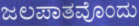
ಜಲಪಾತವೊಂದು